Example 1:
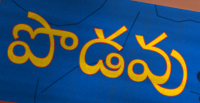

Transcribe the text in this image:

పొడవు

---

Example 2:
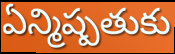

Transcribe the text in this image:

ఏన్మిష్పతుకు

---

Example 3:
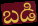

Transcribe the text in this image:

బడి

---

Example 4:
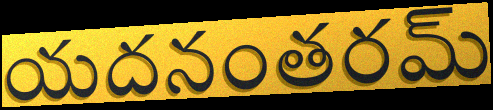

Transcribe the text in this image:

యదనంతరమ్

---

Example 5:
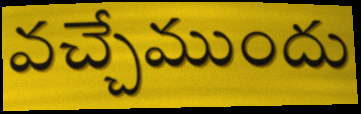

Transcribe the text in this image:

వచ్చేముందు